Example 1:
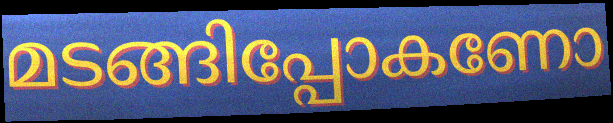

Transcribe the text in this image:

മടങ്ങിപ്പോകണോ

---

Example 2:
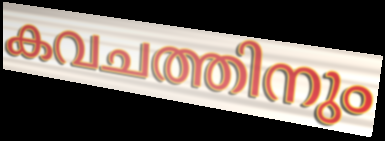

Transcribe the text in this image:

കവചത്തിനും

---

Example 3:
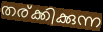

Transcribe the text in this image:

തര്ക്കിക്കുന്ന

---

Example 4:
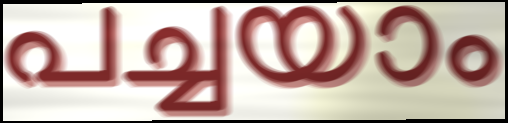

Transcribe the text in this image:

പച്ചയാം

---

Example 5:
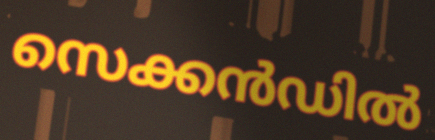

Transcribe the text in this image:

സെക്കൻഡിൽ